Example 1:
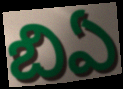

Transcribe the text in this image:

బిఏ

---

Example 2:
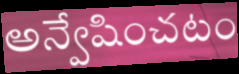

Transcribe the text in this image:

అన్వేషించటం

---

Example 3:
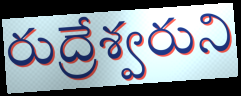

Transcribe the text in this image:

రుద్రేశ్వరుని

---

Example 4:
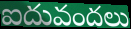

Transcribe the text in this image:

ఐదువందలు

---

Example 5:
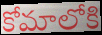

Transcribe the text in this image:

కోమాలోకి